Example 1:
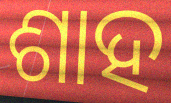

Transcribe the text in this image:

ଶାହ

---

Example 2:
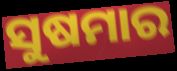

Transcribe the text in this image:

ସୁଷମାର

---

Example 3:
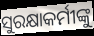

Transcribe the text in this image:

ସୁରକ୍ଷାକର୍ମୀଙ୍କୁ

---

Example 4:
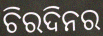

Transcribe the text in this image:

ଚିରଦିନର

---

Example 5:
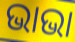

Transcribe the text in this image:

ଭାଭା